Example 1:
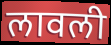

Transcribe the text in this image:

लावली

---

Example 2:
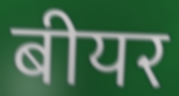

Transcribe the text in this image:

बीयर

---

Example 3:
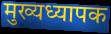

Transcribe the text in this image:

मुख्यध्यापक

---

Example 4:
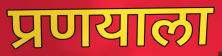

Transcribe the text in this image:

प्रणयाला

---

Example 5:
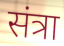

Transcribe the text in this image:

संत्रा